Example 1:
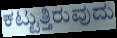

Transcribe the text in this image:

ಕಟ್ಟುತ್ತಿರುವುದು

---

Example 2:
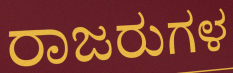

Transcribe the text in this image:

ರಾಜರುಗಳ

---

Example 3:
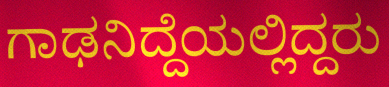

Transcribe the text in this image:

ಗಾಢನಿದ್ದೆಯಲ್ಲಿದ್ದರು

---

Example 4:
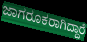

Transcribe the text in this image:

ಜಾಗರೂಕರಾಗಿದ್ದಾರೆ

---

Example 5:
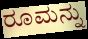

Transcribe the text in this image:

ರೂಮನ್ನು